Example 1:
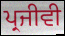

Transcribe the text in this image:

ਪ੍ਰਜੀਵੀ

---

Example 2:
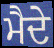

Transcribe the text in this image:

ਮੈਦੇ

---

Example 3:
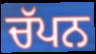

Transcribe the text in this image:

ਚੱਪਨ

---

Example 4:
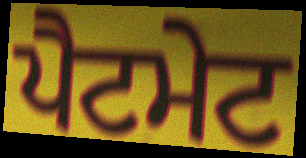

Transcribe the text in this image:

ਪੈਟਮੇਟ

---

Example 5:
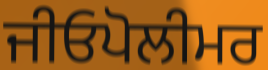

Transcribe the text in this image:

ਜੀਓਪੋਲੀਮਰ